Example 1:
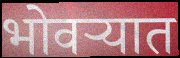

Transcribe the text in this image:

भोवऱ्यात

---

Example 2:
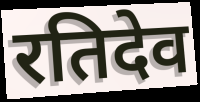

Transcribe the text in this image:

रतिदेव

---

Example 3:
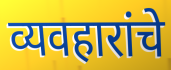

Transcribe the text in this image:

व्यवहारांचे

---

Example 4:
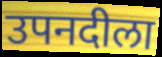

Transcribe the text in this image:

उपनदीला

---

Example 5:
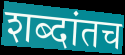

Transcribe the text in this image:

शब्दांतच